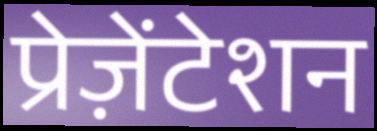
प्रेज़ेंटेशन